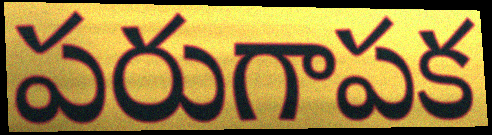
పరుగాపక